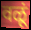
वळूं